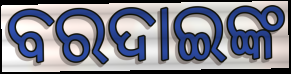
ବରଦାଇଙ୍କ